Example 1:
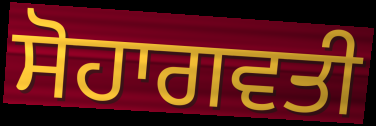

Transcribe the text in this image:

ਸੋਹਾਗਵਤੀ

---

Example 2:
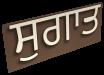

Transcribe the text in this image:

ਸੁਗਾਤ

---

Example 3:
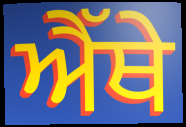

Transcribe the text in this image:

ਐੱਥੇ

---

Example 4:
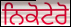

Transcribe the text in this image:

ਨਿਕੋਟੇਰੋ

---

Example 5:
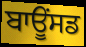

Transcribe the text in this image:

ਬਾਊਂਸਡ